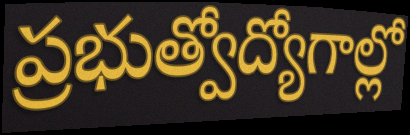
ప్రభుత్వోద్యోగాల్లో